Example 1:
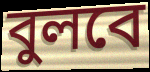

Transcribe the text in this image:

বুলবে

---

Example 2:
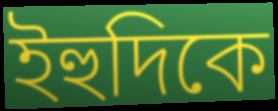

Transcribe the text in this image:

ইহুদিকে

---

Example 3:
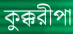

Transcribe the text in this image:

কুক্করীপা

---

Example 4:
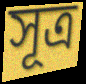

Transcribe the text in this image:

সূত্র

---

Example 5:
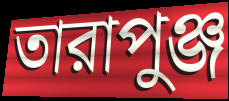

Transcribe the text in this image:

তারাপুঞ্জ